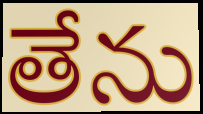
తేను